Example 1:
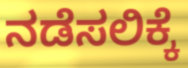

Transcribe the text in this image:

ನಡೆಸಲಿಕ್ಕೆ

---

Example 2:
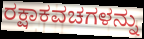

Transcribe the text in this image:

ರಕ್ಷಾಕವಚಗಳನ್ನು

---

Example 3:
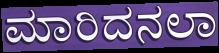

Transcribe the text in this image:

ಮಾರಿದನಲಾ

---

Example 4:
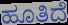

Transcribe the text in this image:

ಹೂತಿದೆ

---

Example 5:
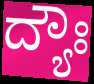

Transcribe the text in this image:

ದ್ಯೌಃ